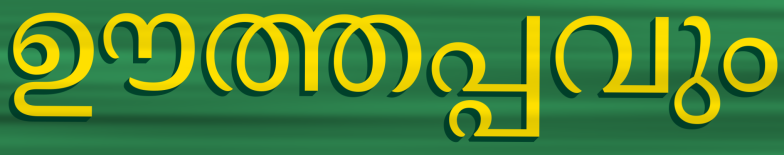
ഊത്തപ്പവും